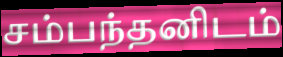
சம்பந்தனிடம்